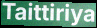
Taittiriya